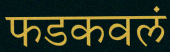
फडकवलं